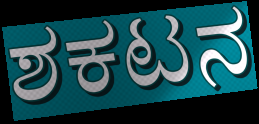
ಶಕಟನ